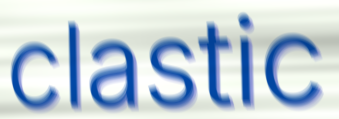
clastic